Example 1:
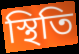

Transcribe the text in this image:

স্থিতি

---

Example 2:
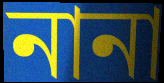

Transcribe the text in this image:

নানা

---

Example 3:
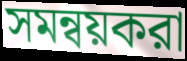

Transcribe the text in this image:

সমন্বয়করা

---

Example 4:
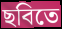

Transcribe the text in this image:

ছবিতে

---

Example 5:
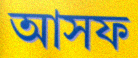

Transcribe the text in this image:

আসফ